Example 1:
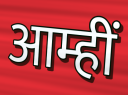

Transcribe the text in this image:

आम्हीं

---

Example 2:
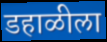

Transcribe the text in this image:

डहाळीला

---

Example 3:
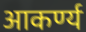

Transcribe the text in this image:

आकर्ण्य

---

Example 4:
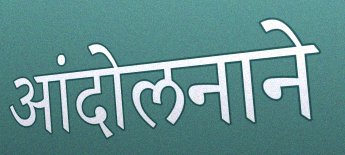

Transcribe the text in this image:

आंदोलनाने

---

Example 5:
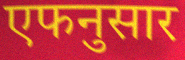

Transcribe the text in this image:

एफनुसार